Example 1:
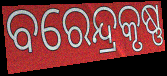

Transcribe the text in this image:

ବରେନ୍ଦ୍ରକୃଷ୍ଣ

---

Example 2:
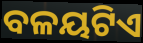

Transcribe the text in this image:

ବଳୟଟିଏ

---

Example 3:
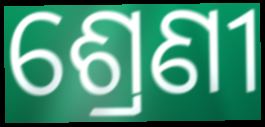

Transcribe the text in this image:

ଶ୍ରେଣୀ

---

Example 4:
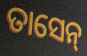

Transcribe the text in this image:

ତାସେନ୍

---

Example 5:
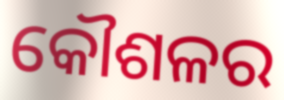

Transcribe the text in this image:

କୌଶଳର